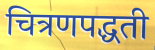
चित्रणपद्धती